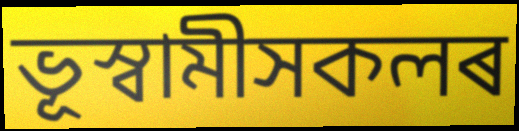
ভূস্বামীসকলৰ